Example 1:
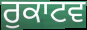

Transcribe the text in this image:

ਰੁਕਾਟਵ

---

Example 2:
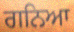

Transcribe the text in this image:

ਗਨਿਆ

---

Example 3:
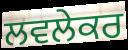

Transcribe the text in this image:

ਲਵਲੇਕਰ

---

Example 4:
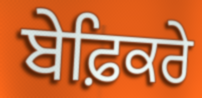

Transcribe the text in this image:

ਬੇਫ਼ਿਕਰੇ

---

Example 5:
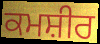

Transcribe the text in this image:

ਕਮਸ਼ੀਰ